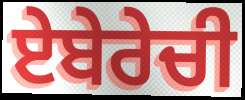
ਏਬੇਰੇਚੀ